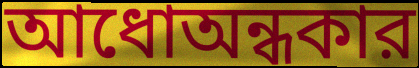
আধোঅন্ধকার